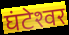
घंटेश्वर